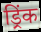
ड्रिंक